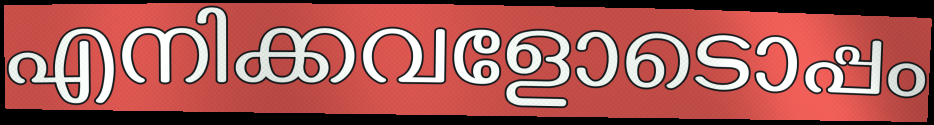
എനിക്കവളോടൊപ്പം